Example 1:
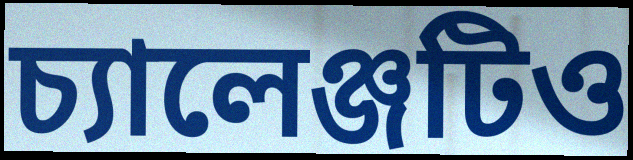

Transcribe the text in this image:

চ্যালেঞ্জটিও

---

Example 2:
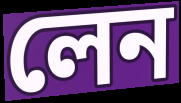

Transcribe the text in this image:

লেন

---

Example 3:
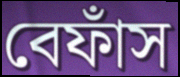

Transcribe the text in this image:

বেফাঁস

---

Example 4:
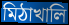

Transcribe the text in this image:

মিঠাখালি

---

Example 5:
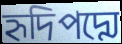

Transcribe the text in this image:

হৃদিপদ্মে